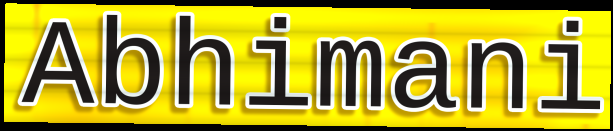
Abhimani